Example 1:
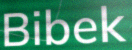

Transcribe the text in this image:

Bibek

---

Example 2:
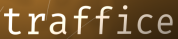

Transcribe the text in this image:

traffice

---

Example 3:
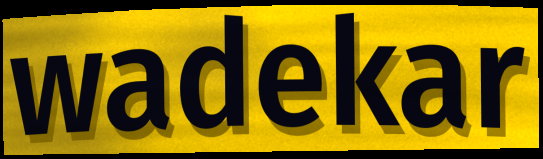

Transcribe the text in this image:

wadekar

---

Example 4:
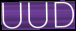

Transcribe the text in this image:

UUD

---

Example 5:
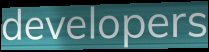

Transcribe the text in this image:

developers